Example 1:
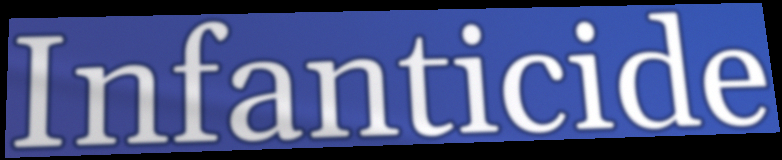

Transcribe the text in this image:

Infanticide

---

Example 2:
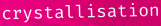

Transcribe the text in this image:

crystallisation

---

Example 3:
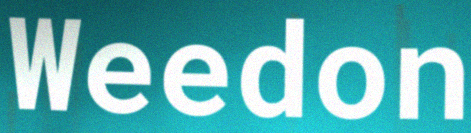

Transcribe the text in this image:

Weedon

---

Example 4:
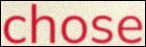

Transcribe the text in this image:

chose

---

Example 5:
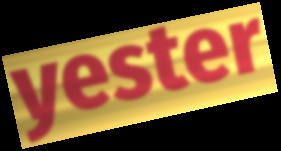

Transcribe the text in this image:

yester